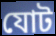
যোট